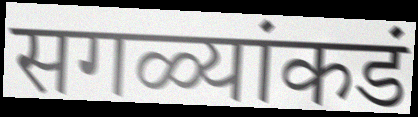
सगळ्यांकडं